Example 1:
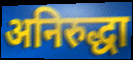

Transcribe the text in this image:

अनिरुद्धा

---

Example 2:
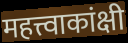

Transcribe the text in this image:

महत्त्वाकांक्षी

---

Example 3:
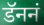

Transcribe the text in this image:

डॅननं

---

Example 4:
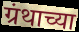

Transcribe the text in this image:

ग्रंथाच्या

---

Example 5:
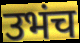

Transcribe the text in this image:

उभंच